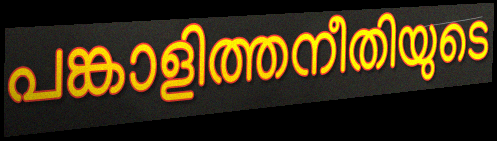
പങ്കാളിത്തനീതിയുടെ